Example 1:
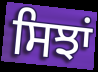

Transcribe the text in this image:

ਸਿਝਾਂ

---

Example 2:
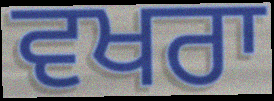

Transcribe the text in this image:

ਵਖਰਾ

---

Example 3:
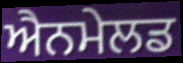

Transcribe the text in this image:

ਐਨਮੇਲਡ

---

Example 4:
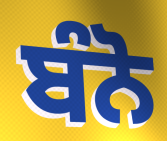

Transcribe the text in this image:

ਬੰਨੋ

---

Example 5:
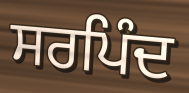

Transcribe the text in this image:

ਸਰਪਿੰਦ